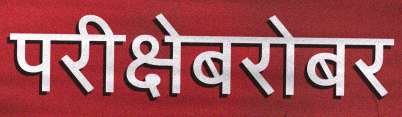
परीक्षेबरोबर